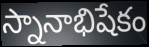
స్నానాభిషేకం